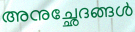
അനുച്ഛേദങ്ങൾ